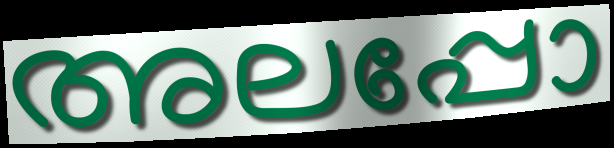
അലപ്പോ